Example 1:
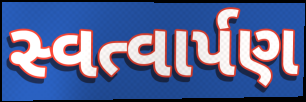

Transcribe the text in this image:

સ્વત્વાર્પણ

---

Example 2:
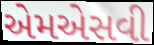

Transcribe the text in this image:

એમએસવી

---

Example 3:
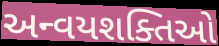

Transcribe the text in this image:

અન્વયશક્તિઓ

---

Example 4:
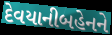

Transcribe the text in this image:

દેવયાનીબહેનને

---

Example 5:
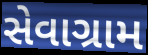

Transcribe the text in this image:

સેવાગ્રામ